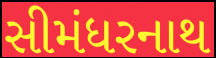
સીમંધરનાથ